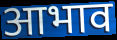
आभाव